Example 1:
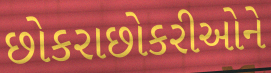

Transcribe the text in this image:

છોકરાછોકરીઓને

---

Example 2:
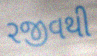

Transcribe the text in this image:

રજીવથી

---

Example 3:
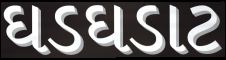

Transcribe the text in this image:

ઘડઘડાટ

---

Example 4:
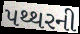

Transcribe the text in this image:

પથ્થરની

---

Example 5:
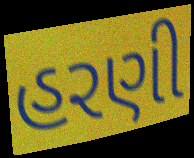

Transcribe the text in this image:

હરણી